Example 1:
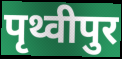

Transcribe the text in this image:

पृथ्वीपुर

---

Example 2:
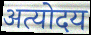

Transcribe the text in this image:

अत्योदय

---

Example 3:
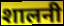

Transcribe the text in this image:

शालनी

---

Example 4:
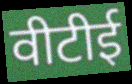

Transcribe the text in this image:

वीटीई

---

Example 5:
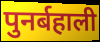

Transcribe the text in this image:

पुनर्बहाली